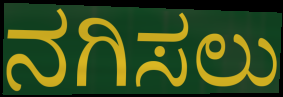
ನಗಿಸಲು